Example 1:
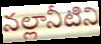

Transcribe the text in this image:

నల్లానీటిని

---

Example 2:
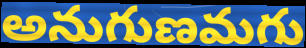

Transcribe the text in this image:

అనుగుణమగు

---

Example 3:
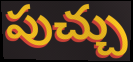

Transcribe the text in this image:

పుచ్చు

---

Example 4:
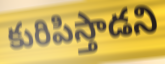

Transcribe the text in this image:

కురిపిస్తాడని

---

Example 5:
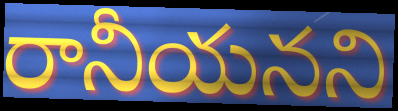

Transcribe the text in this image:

రానీయనని